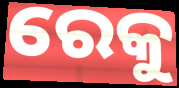
ରେକୁ